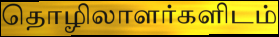
தொழிலாளர்களிடம்